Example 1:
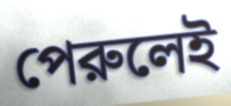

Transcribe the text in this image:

পেরুলেই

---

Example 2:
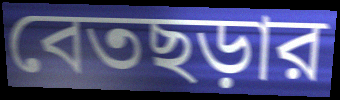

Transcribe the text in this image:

বেতছড়ার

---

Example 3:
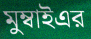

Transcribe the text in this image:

মুম্বাইএর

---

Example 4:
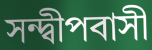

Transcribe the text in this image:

সন্দ্বীপবাসী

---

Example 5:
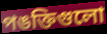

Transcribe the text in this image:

পঙক্তিগুলো